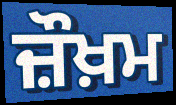
ਜ਼ੌਖ਼ਮ